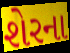
શેરના